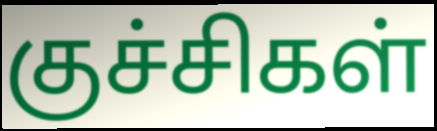
குச்சிகள்